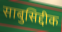
साबुसिद्दीक